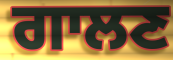
ਗਾਲਣ